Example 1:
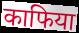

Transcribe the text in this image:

काफिया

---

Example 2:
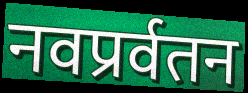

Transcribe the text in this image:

नवप्रर्वतन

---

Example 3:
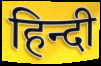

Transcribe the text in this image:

हिन्‍दी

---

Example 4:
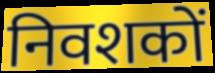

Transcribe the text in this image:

निवशकों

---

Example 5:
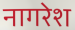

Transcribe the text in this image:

नागरेश